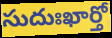
సుదుఃఖార్తో